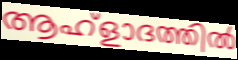
ആഹ്ളാദത്തിൽ